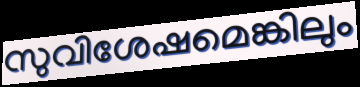
സുവിശേഷമെങ്കിലും